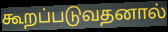
கூறப்படுவதனால்